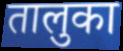
तालुका